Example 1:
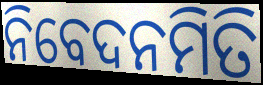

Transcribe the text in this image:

ନିବେଦନମିତି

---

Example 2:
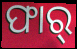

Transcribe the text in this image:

ଫାର୍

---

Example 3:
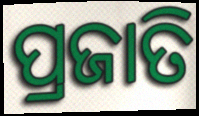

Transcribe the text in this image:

ପ୍ରଜାତି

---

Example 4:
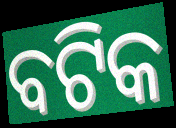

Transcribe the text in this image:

ବଟିକ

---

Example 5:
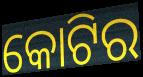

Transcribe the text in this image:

କୋଟିର